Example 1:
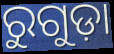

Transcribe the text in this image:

ରୁଗୁଡ଼ା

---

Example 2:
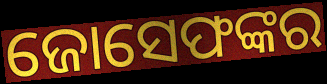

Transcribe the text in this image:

ଜୋସେଫଙ୍କର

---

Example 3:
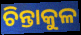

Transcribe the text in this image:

ଚିନ୍ତାକୁଳ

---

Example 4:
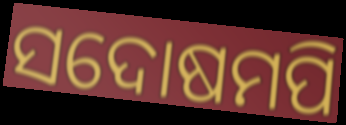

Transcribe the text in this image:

ସଦୋଷମପି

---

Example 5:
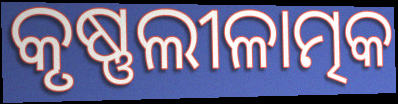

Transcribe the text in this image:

କୃଷ୍ଣଲୀଳାତ୍ମକ